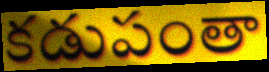
కడుపంతా